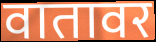
वातावर